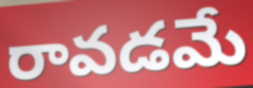
రావడమే